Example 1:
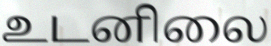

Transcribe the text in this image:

உடனிலை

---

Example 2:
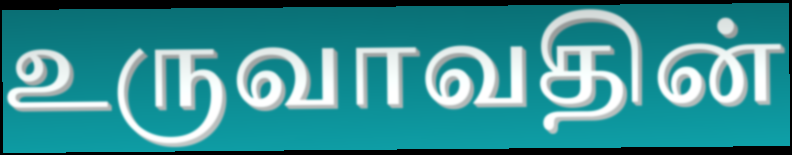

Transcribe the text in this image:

உருவாவதின்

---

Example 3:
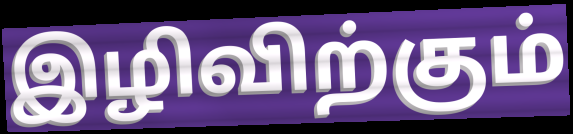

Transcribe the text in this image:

இழிவிற்கும்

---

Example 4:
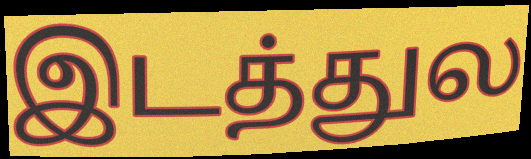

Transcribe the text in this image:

இடத்துல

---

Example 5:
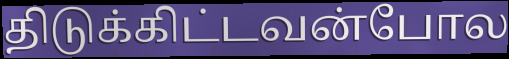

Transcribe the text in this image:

திடுக்கிட்டவன்போல